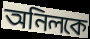
অনিলকে